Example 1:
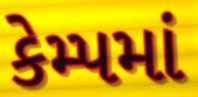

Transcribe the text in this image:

કેમ્પમાં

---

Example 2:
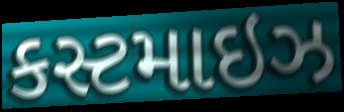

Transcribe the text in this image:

કસ્ટમાઇઝ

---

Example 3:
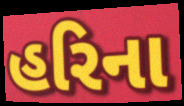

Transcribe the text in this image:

હરિના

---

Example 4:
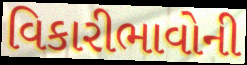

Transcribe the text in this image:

વિકારીભાવોની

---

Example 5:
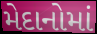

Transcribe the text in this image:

મેદાનોમાં